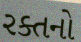
રક્તનો